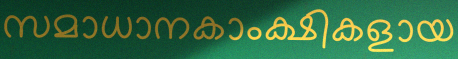
സമാധാനകാംക്ഷികളായ